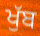
ਖੁੱਬ